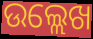
ଉଲ୍ଲେଖ